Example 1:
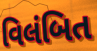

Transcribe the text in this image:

વિલંબિત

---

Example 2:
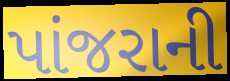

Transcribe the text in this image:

પાંજરાની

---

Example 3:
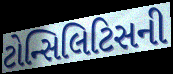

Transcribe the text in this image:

ટોન્સિલિટિસની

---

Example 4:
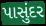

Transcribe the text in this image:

પાસુંદર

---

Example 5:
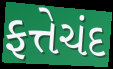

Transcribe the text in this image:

ફત્તેચંદ